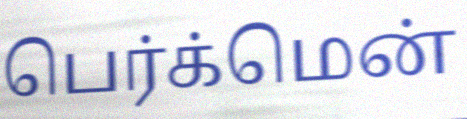
பெர்க்மென்